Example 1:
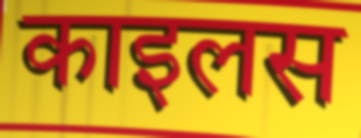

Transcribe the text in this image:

काइलस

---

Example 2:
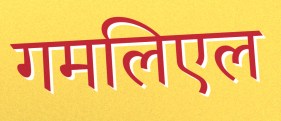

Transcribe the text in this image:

गमलिएल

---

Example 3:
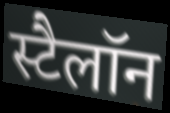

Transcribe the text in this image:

स्टैलॉन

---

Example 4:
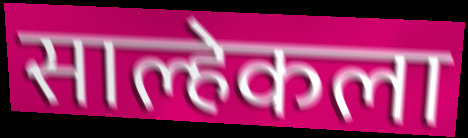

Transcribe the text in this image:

साल्हेकला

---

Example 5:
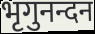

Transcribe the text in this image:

भृगुनन्दन